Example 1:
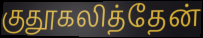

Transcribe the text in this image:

குதூகலித்தேன்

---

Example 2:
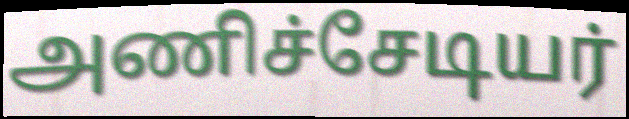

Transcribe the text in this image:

அணிச்சேடியர்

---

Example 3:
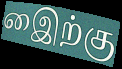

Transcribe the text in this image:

இைற்கு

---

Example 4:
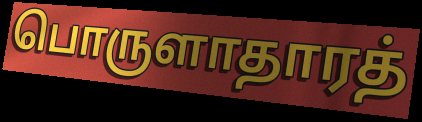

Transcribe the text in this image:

பொருளாதாரத்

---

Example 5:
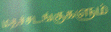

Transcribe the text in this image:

மதச்சடங்குகளும்